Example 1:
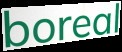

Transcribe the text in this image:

boreal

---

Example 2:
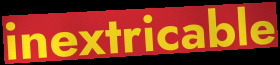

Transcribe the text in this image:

inextricable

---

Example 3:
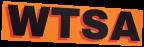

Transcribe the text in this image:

WTSA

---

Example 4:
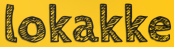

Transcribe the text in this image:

lokakke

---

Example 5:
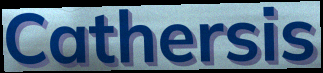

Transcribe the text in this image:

Cathersis